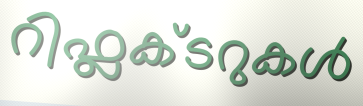
റിഫ്ലക്ടറുകൾ